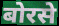
बोरसे